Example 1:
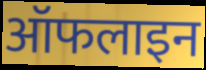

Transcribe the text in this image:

ऑफलाइन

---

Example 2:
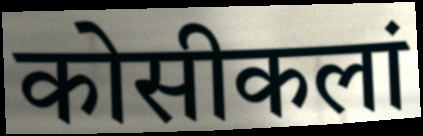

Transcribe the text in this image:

कोसीकलां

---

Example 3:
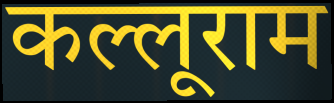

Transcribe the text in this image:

कल्लूराम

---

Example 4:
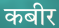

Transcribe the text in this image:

कबीर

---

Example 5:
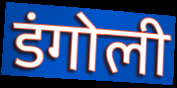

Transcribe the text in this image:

डंगोली